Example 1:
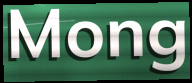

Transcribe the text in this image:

Mong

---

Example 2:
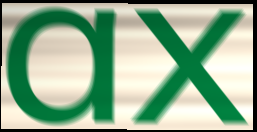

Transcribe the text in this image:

ax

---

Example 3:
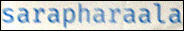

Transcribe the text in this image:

sarapharaala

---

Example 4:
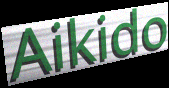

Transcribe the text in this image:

Aikido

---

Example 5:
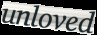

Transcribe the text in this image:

unloved